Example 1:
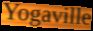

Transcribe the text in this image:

Yogaville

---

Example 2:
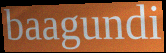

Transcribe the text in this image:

baagundi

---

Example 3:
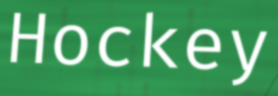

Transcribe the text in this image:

Hockey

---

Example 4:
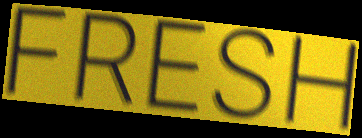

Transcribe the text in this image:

FRESH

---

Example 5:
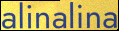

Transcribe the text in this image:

alinalina